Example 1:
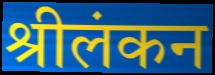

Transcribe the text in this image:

श्रीलंकन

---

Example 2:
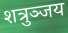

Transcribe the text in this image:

शत्रुञ्जय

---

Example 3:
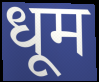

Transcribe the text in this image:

धूम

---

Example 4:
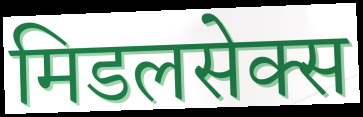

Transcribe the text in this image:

मिडलसेक्स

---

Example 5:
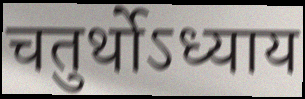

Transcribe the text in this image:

चतुर्थोऽध्याय